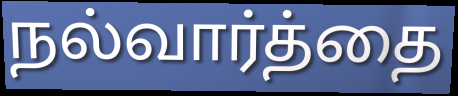
நல்வார்த்தை